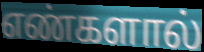
எண்களால்